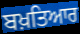
ਬਖ਼ਤਿਆਰ